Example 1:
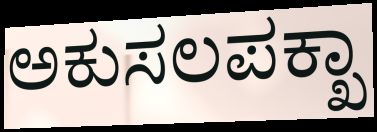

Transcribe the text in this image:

ಅಕುಸಲಪಕ್ಖಾ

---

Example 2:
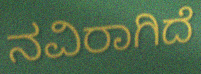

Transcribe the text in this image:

ನವಿರಾಗಿದೆ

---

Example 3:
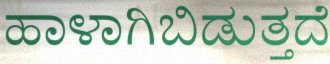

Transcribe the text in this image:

ಹಾಳಾಗಿಬಿಡುತ್ತದೆ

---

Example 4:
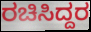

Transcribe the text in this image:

ರಚಿಸಿದ್ದರ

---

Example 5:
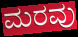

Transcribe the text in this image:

ಮರವು